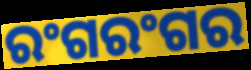
ରଂଗରଂଗର